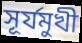
সূর্যমুখী